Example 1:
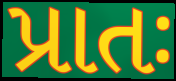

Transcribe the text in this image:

પ્રાતઃ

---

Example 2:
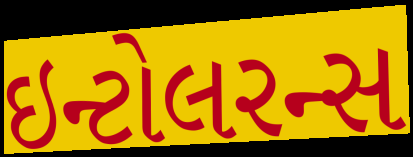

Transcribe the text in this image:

ઇન્ટોલરન્સ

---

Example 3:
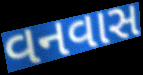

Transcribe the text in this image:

વનવાસ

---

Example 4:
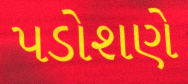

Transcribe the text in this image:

પડોશણે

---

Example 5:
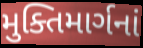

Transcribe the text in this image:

મુક્તિમાર્ગનાં